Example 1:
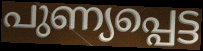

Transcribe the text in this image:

പുണ്യപ്പെട്ട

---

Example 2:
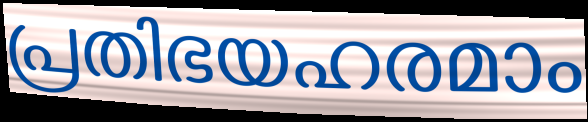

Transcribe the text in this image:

പ്രതിഭയഹരമാം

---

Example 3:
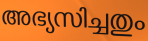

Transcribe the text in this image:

അഭ്യസിച്ചതും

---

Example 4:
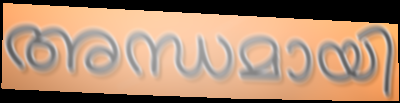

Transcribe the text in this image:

അന്ധമായി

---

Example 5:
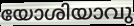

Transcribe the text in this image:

യോശിയാവു